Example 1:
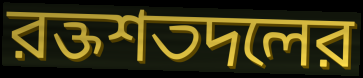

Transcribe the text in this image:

রক্তশতদলের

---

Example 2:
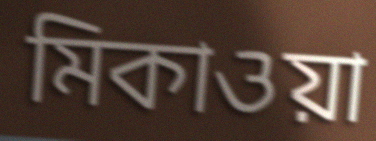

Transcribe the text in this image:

মিকাওয়া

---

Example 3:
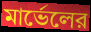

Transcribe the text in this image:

মার্ভেলের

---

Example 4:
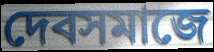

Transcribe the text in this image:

দেবসমাজে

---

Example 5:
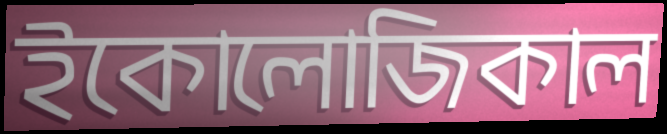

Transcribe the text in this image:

ইকোলোজিকাল